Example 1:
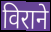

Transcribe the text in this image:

विराने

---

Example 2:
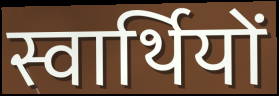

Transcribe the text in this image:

स्वार्थियों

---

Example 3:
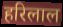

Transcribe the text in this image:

हरिलाल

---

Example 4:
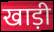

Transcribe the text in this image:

खाड़ी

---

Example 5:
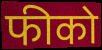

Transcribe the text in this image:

फीको